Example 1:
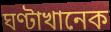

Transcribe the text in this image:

ঘণ্টাখানেক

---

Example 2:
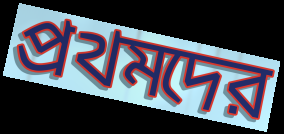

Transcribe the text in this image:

প্রথমদের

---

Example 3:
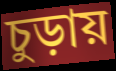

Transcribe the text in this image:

চুড়ায়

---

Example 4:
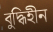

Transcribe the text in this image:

বুদ্ধিহীন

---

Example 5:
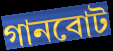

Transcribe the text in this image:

গানবোট